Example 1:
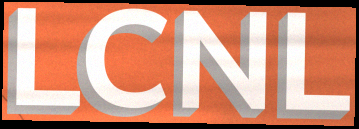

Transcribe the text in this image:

LCNL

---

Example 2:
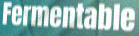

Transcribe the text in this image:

Fermentable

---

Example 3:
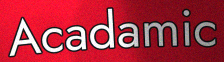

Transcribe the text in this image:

Acadamic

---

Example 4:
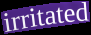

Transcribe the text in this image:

irritated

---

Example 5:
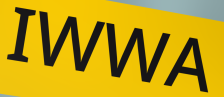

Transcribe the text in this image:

IWWA